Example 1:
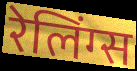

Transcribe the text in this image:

रेलिंग्स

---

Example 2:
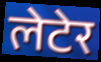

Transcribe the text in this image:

लेटेर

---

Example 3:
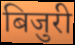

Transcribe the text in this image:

बिजुरी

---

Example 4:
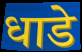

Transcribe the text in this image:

धाडे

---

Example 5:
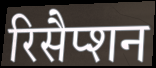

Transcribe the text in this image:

रिसैप्शन